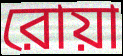
রোয়া